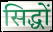
सिद्धों